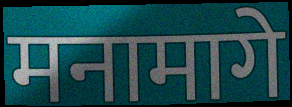
मनामागे